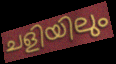
ചളിയിലും